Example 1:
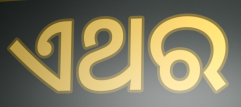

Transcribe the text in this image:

ଏଥର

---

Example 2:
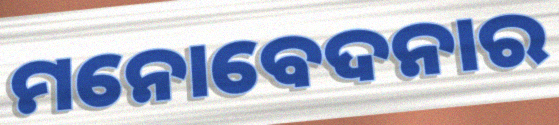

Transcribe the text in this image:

ମନୋବେଦନାର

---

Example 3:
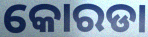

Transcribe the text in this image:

କୋରଡା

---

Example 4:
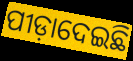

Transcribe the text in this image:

ପୀଡ଼ାଦେଇଛି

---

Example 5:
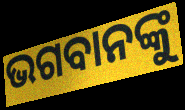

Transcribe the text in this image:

ଭଗବାନଙ୍କୁ